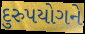
દુરુપયોગને